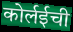
कोर्लईची